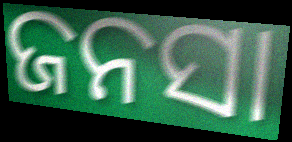
ଜନସା